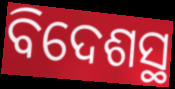
ବିଦେଶସ୍ଥ